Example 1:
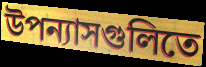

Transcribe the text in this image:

উপন্যাসগুলিতে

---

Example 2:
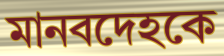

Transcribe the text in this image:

মানবদেহকে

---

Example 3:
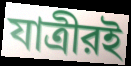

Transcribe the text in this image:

যাত্রীরই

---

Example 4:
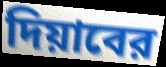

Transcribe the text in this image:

দিয়াবের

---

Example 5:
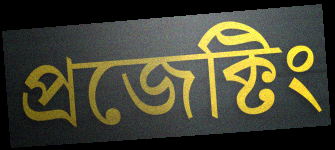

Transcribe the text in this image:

প্রজেক্টিং